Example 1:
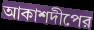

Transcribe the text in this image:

আকাশদীপের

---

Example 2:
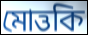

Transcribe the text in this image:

মোত্তকি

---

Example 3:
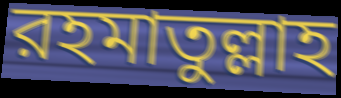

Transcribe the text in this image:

রহমাতুল্লাহ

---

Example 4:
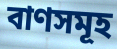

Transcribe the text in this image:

বাণসমূহ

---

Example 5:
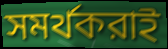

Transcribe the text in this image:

সমর্থকরাই